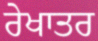
ਰੇਖਾਤਰ